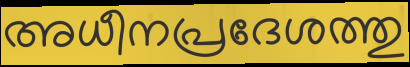
അധീനപ്രദേശത്തു